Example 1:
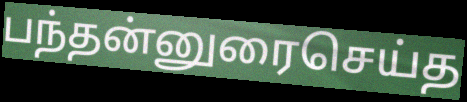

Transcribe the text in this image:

பந்தன்னுரைசெய்த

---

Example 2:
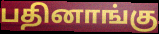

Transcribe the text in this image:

பதினாங்கு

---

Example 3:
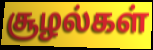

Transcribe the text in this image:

சூழல்கள்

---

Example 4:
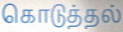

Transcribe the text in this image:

கொடுத்தல்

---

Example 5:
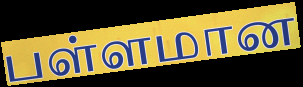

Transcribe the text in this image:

பள்ளமான